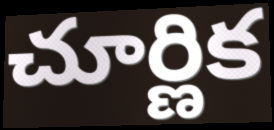
చూర్ణిక